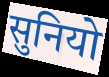
सुनियो